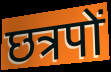
छत्रपों